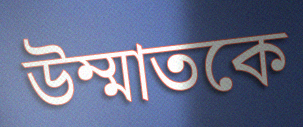
উম্মাতকে